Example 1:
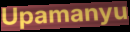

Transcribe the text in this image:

Upamanyu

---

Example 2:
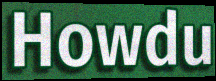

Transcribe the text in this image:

Howdu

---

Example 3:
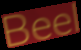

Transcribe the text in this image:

Beel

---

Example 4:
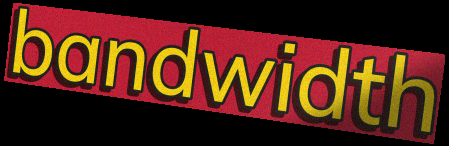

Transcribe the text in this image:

bandwidth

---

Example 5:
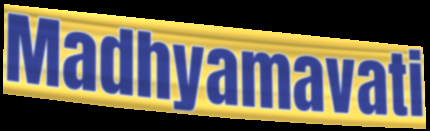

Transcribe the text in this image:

Madhyamavati